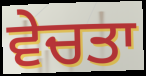
ਵੇਚਤਾ